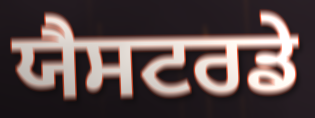
ਯੈਸਟਰਡੇ